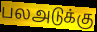
பலஅடுக்கு